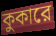
কুকারে